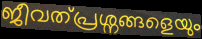
ജീവത്പ്രശ്നങ്ങളെയും